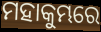
ମହାକୁମ୍ଭରେ